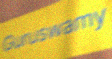
Guruswamy